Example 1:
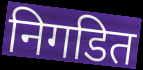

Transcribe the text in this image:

निगडित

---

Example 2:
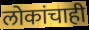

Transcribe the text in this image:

लोकांचाही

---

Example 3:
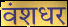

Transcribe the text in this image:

वंशधर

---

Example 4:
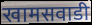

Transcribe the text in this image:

खामसवाडी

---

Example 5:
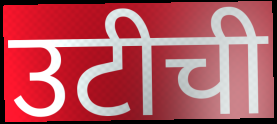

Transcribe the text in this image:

उटीची